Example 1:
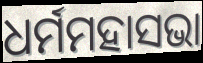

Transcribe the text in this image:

ଧର୍ମମହାସଭା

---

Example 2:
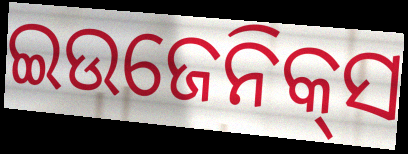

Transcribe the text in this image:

ଇଉଜେନିକ୍‌ସ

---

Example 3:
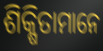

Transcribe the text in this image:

ଶିକ୍ଷିତାମାନେ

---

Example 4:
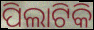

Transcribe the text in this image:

ପିଲାଟିକି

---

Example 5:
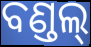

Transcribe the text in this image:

ବଣ୍ଡଲ୍